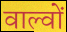
वाल्वों